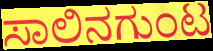
ಸಾಲಿನಗುಂಟ